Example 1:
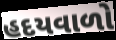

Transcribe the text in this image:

હદયવાળો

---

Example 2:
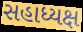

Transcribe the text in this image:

સહાધ્યક્ષ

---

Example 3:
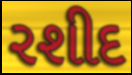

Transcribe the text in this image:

રશીદ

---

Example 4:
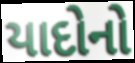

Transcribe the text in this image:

યાદોનો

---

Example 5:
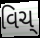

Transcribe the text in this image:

વિચ્